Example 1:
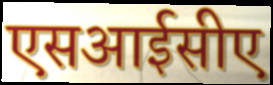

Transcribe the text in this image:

एसआईसीए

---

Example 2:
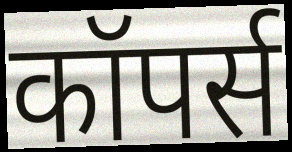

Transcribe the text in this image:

कॉपर्स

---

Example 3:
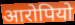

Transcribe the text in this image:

आरोपियो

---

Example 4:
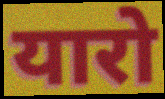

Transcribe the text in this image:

यारो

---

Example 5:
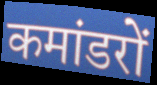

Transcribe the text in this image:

कमांडरों